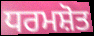
ਧਰਮਸ਼ੋਤ